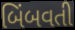
બિંબવતી